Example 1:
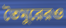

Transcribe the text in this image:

তৈমুরেরও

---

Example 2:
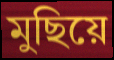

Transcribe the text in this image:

মুছিয়ে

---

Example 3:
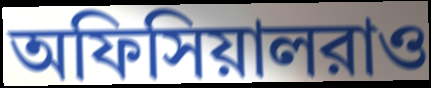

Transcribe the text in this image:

অফিসিয়ালরাও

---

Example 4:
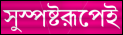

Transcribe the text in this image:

সুস্পষ্টরূপেই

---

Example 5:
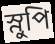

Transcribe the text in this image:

স্নুপি